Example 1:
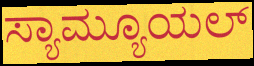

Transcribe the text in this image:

ಸ್ಯಾಮ್ಯೂಯಲ್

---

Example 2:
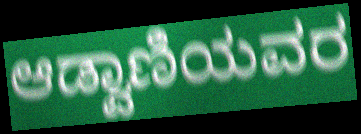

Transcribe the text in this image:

ಆಡ್ವಾಣಿಯವರ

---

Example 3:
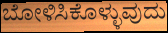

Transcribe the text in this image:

ಬೋಳಿಸಿಕೊಳ್ಳುವುದು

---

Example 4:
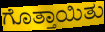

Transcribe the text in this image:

ಗೊತ್ತಾಯಿತು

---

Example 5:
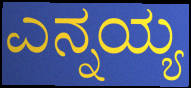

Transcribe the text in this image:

ಎನ್ನಯ್ಯ